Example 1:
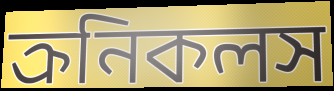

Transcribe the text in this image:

ক্রনিকলস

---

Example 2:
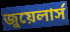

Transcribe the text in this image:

জুয়েলার্স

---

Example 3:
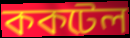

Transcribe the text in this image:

ককটেল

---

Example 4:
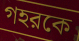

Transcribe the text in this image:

গহরকে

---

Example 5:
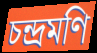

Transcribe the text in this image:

চন্দ্রমণি